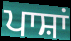
ਪਾਸ਼ਾਂ